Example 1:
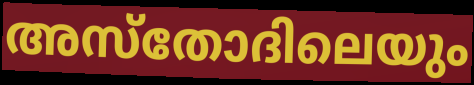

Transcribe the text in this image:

അസ്തോദിലെയും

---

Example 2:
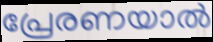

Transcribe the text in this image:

പ്രേരണയാൽ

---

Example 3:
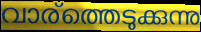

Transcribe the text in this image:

വാര്ത്തെടുക്കുന്നു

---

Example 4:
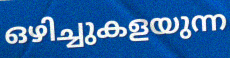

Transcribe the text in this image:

ഒഴിച്ചുകളയുന്ന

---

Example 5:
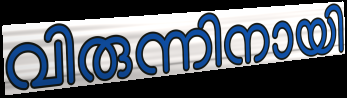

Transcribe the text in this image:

വിരുന്നിനായി